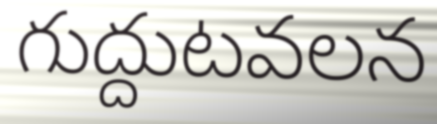
గుద్దుటవలన